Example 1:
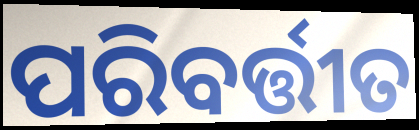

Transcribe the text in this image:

ପରିବର୍ତ୍ତୀତ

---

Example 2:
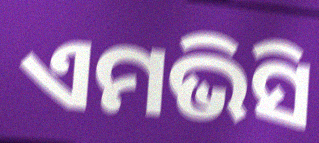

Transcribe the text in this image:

ଏମଭିସି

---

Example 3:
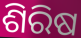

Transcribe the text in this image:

ଶିରିଷ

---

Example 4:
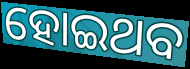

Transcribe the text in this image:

ହୋଇଥବ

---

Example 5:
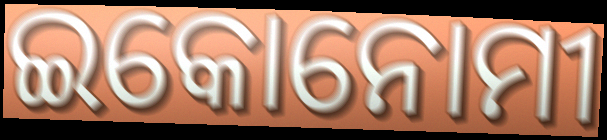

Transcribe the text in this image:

ଇକୋନୋମୀ